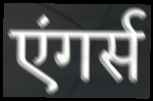
एंगर्स